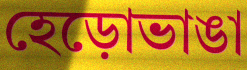
হেড়োভাঙা